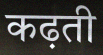
कढ़ती